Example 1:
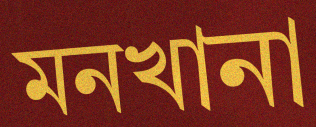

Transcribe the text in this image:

মনখানা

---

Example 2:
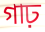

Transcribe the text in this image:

গাঢ়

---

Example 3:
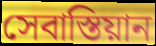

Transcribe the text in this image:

সেবাস্তিয়ান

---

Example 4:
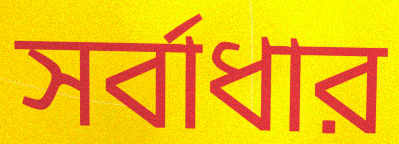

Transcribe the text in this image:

সর্বাধার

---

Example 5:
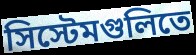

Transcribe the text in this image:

সিস্টেমগুলিতে